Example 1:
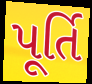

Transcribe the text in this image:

પૂર્તિ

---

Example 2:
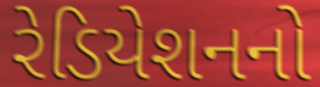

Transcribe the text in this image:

રેડિયેશનનો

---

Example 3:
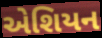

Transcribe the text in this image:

એશિયન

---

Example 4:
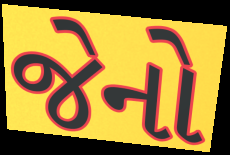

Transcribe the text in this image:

જેનો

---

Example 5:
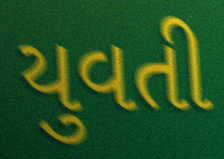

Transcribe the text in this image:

યુવતી